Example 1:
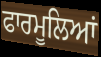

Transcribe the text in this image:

ਫਾਰਮੂਲਿਆਂ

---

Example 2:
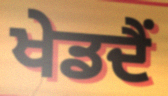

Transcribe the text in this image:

ਖੇਡਦੈਂ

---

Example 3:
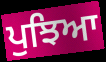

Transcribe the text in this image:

ਪੁਝਿਆ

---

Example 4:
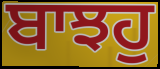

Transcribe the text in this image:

ਬਾਝਹੁ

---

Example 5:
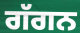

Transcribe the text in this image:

ਗੱਗਨ